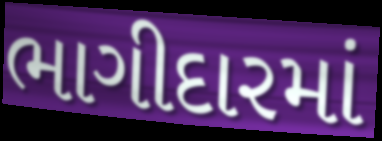
ભાગીદારમાં